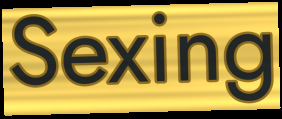
Sexing